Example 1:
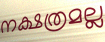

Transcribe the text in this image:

നക്ഷത്രമല്ല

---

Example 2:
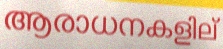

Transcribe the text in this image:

ആരാധനകളില്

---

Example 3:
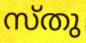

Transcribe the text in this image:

സ്തു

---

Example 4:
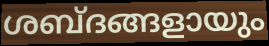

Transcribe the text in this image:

ശബ്ദങ്ങളായും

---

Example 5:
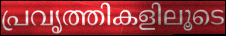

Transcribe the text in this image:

പ്രവൃത്തികളിലൂടെ